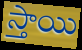
స్తాయి